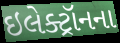
ઇલેક્ટ્રૉનના